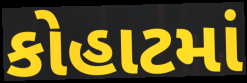
કોહાટમાં